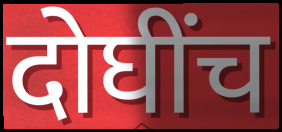
दोघींच